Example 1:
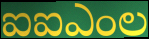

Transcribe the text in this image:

ఐఐఎంల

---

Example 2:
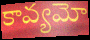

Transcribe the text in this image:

కావ్యమో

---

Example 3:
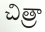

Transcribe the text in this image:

చిత్రా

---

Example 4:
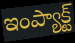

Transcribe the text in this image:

ఇంప్యాక్ట్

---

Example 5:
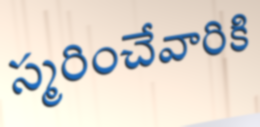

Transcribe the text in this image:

స్మరించేవారికి